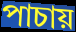
পাচায়